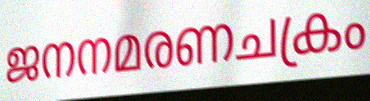
ജനനമരണചക്രം